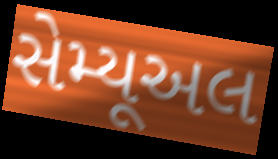
સેમ્યૂઅલ